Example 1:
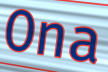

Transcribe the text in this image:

Ona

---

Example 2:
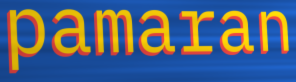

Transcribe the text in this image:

pamaran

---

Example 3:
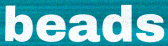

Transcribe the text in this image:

beads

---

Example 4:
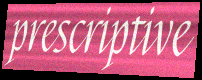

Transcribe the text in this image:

prescriptive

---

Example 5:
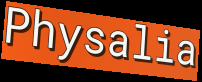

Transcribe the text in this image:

Physalia